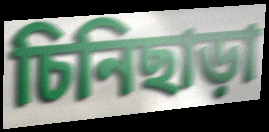
চিনিছাড়া